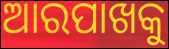
ଆରପାଖକୁ